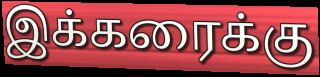
இக்கரைக்கு